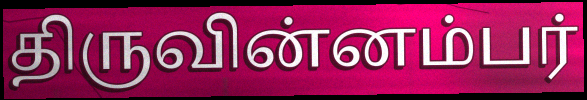
திருவின்னம்பர்